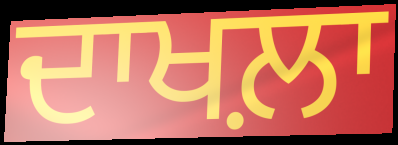
ਦਾਖਲ਼ਾ